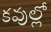
కవుల్లో